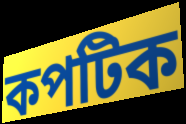
কপটিক